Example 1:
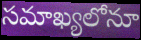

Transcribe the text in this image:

సమాఖ్యలోనూ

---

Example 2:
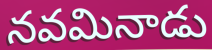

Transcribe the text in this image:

నవమినాడు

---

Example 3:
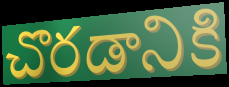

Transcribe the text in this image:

చొరడానికి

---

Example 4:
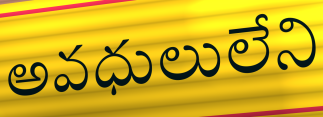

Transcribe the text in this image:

అవధులులేని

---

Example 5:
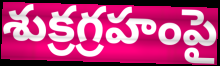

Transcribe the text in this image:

శుక్రగ్రహంపై